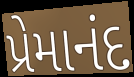
પ્રેમાનંદ